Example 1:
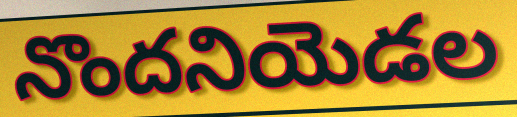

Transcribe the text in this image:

నొందనియెడల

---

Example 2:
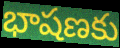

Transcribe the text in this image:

భాషణకు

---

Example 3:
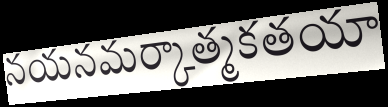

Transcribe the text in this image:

నయనమర్కాత్మకతయా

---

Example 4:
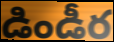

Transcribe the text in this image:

డిండీర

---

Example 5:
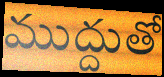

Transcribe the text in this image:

ముద్దుతో